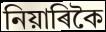
নিয়াৰিকৈ